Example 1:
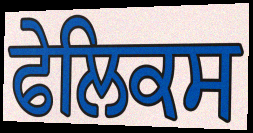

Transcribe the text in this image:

ਫੇਲਿਕਸ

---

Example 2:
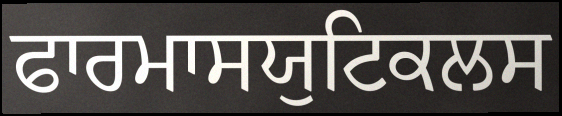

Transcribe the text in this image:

ਫਾਰਮਾਸਯੁਟਿਕਲਸ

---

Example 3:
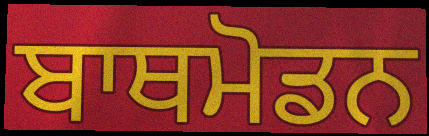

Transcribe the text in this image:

ਬਾਥਮੋਡਨ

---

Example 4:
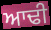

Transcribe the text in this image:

ਆਢੀ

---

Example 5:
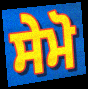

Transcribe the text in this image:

ਸੇਮੋ